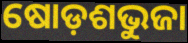
ଷୋଡ଼ଶଭୁଜା